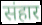
संहार